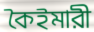
কৈইমারী